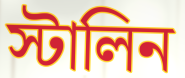
স্টালিন